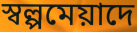
স্বল্পমেয়াদে